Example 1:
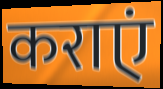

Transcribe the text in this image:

कराएं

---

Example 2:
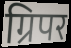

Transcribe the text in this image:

ग्रिपर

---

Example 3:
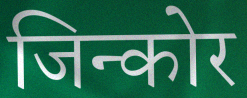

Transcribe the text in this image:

जिन्कोर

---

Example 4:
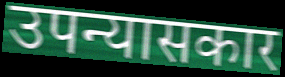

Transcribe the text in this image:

उपन्यासकार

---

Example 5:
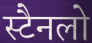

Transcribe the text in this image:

स्टैनलो